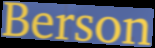
Berson